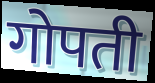
गोपती